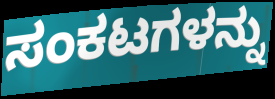
ಸಂಕಟಗಳನ್ನು